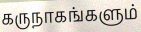
கருநாகங்களும்